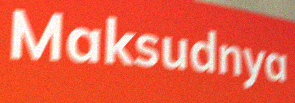
Maksudnya